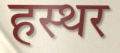
हस्थर